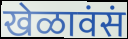
खेळावंसं